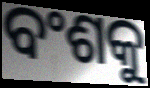
ବଂଶକୁ